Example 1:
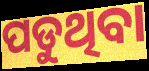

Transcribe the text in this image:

ପଡୁଥିବା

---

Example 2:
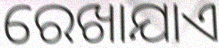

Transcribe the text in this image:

ରେଖାଯାଏ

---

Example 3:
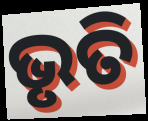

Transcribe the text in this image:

ଭୃତି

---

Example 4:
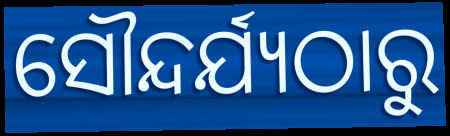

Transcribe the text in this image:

ସୌନ୍ଦର୍ଯ୍ୟଠାରୁ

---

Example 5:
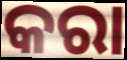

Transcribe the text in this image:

କରା